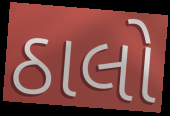
ઠાલો